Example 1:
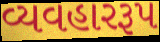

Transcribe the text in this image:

વ્યવહારરૂપ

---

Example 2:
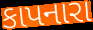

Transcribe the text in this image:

કાપનારા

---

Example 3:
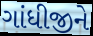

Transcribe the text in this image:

ગાંધીજીને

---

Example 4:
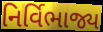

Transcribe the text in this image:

નિર્વિભાજ્ય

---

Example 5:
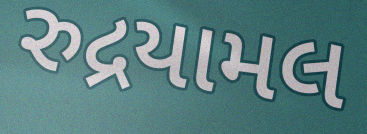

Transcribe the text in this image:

રુદ્રયામલ